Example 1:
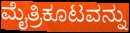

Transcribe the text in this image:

ಮೈತ್ರಿಕೂಟವನ್ನು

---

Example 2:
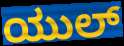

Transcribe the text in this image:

ಯುಲ್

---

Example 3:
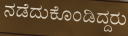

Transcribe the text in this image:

ನಡೆದುಕೊಂಡಿದ್ದರು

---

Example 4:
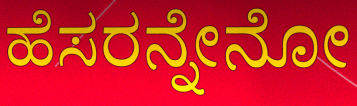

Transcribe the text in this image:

ಹೆಸರನ್ನೇನೋ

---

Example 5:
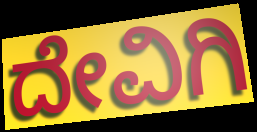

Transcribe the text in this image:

ದೇವಿಗಿ